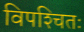
विपश्चितः